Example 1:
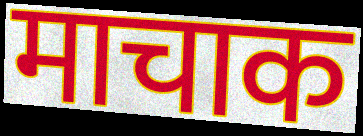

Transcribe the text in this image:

माचाक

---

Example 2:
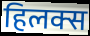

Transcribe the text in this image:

हिलक्स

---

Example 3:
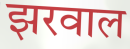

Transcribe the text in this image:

झरवाल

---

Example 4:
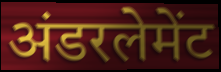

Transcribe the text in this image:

अंडरलेमेंट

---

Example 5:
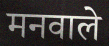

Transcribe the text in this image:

मनवाले